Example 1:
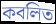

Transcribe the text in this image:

কবলিত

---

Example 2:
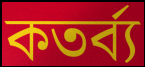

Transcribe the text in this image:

কতর্ব্য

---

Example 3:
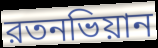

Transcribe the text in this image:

রতনভিয়ান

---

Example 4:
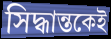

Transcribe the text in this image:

সিদ্ধান্তকেই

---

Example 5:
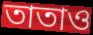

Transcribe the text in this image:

তাতাও